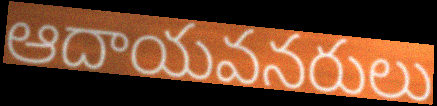
ఆదాయవనరులు